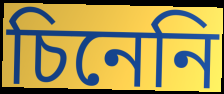
চিনেনি